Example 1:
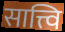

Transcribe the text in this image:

सात्त्वि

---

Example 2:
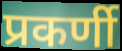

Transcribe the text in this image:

प्रकर्णी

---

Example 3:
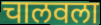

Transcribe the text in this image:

चालवला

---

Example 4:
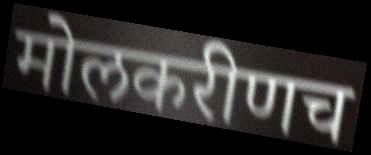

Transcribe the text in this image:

मोलकरीणच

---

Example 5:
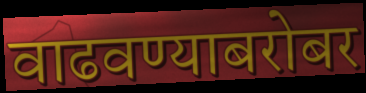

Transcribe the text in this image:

वाढवण्याबरोबर